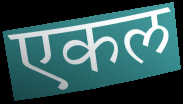
एकल